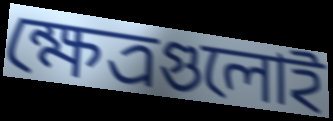
ক্ষেত্রগুলোই